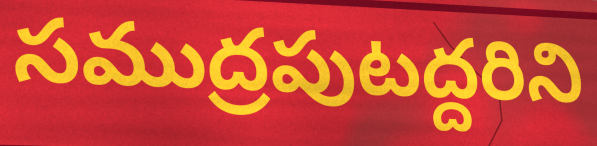
సముద్రపుటద్దరిని